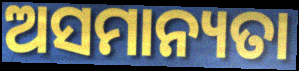
ଅସମାନ୍ୟତା